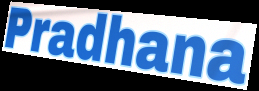
Pradhana